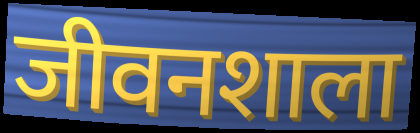
जीवनशाला